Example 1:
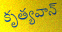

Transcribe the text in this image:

కృత్యవాన్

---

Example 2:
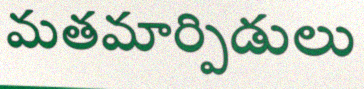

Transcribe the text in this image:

మతమార్పిడులు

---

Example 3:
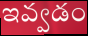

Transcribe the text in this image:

ఇవ్వడం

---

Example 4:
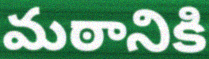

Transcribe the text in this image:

మఠానికి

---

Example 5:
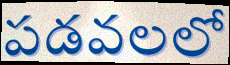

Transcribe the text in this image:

పడవలలో